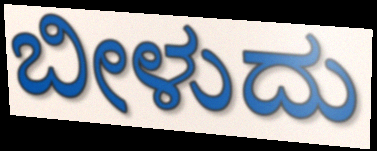
ಬೀಳುದು